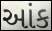
આંક